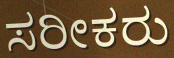
ಸರೀಕರು